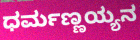
ಧರ್ಮಣ್ಣಯ್ಯನ